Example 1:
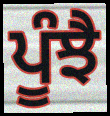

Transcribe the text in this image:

ਪੂੰਝੈ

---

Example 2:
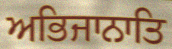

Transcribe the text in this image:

ਅਭਿਜਾਨਾਤਿ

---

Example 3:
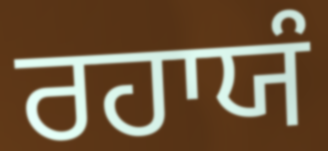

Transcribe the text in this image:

ਰਹਾਯੰ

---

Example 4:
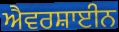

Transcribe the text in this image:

ਐਵਰਸ਼ਾਈਨ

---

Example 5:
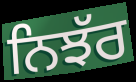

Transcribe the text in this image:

ਨਿਝੱਰ